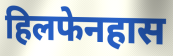
हिलफेनहास